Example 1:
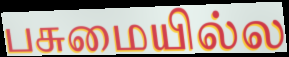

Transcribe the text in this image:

பசுமையில்ல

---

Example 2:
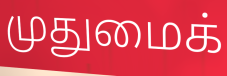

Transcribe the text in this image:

முதுமைக்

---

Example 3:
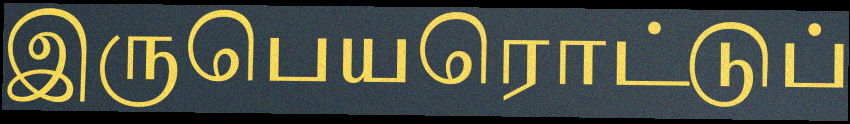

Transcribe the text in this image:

இருபெயரொட்டுப்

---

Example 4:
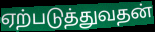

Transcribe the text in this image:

ஏற்படுத்துவதன்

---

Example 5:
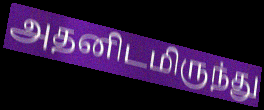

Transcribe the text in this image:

அதனிடமிருந்து